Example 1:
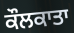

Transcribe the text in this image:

ਕੌਲਕਾਤਾ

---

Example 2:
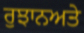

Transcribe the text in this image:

ਰੁਝਾਨਅਤੇ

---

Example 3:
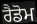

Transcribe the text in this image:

ਰੈਡੋਮ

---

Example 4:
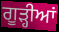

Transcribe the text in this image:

ਗੂੜ੍ਹੀਆਂ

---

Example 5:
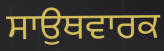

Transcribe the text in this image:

ਸਾਉਥਵਾਰਕ